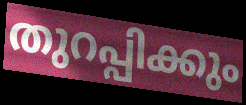
തുറപ്പിക്കും